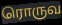
ரொருவ